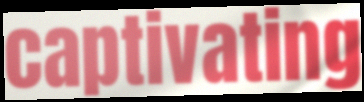
captivating